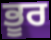
ਭੂਰ